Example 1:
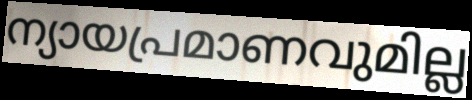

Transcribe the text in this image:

ന്യായപ്രമാണവുമില്ല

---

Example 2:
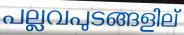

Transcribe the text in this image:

പല്ലവപുടങ്ങളില്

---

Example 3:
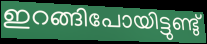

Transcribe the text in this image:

ഇറങ്ങിപോയിട്ടുണ്ടു്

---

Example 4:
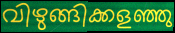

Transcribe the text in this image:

വിഴുങ്ങിക്കളഞ്ഞു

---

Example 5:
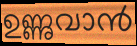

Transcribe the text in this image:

ഉണ്ണുവാൻ